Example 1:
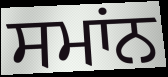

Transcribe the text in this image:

ਸਮਾਂਨ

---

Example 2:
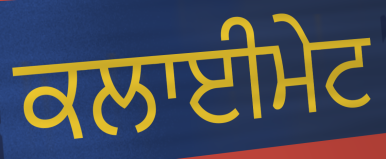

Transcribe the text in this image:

ਕਲਾਈਮੇਟ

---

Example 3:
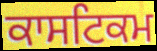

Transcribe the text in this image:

ਕਾਸਟਿਕਮ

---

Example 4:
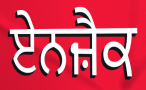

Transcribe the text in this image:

ਏਨਜ਼ੈਕ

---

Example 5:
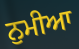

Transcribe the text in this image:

ਨੁਮੀਆ